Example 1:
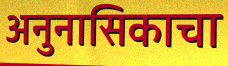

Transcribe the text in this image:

अनुनासिकाचा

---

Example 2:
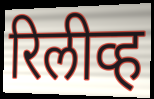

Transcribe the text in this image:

रिलीव्ह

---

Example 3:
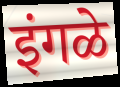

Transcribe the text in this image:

इंगळे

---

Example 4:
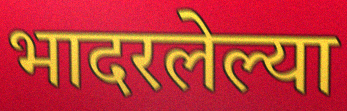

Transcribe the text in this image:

भादरलेल्या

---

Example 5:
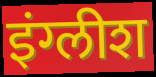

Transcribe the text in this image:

इंग्लीश